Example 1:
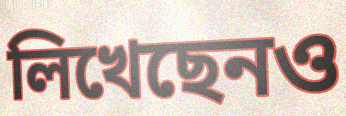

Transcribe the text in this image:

লিখেছেনও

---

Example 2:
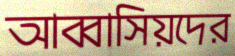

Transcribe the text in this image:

আব্বাসিয়দের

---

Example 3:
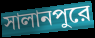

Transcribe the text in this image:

সালানপুরে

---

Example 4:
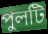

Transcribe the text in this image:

পুলটি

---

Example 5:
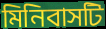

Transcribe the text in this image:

মিনিবাসটি